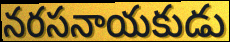
నరసనాయకుడు